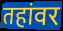
तहांवर